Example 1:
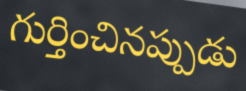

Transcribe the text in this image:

గుర్తించినప్పుడు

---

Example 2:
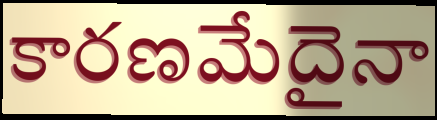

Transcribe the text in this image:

కారణమేదైనా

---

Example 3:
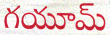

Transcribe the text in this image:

గయూమ్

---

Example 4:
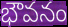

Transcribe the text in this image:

భౌవనం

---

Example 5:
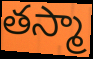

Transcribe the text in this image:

తస్మా